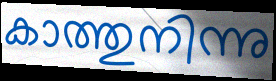
കാത്തുനിന്നു